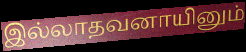
இல்லாதவனாயினும்